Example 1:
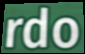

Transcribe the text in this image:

rdo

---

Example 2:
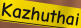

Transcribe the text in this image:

Kazhuthai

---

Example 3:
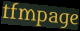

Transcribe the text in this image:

tfmpage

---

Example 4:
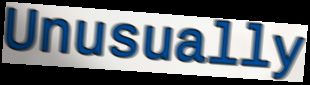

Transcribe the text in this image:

Unusually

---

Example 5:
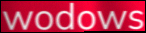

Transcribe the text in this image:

wodows